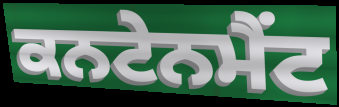
ਕਨਟੇਨਮੈਂਟ